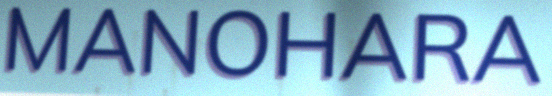
MANOHARA